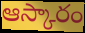
ఆస్కారం